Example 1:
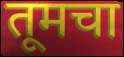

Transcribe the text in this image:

तूमचा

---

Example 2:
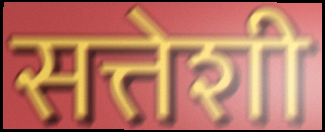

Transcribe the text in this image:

सत्तेशी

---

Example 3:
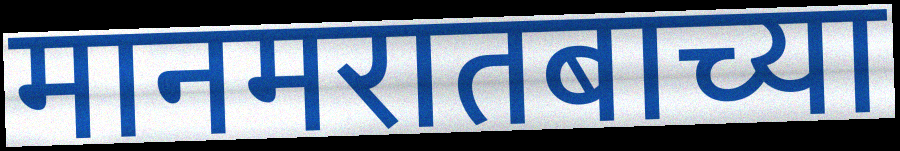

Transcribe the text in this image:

मानमरातबाच्या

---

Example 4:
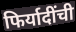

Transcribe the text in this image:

फिर्यादींची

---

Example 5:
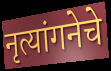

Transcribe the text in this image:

नृत्यांगनेचे